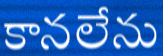
కానలేను